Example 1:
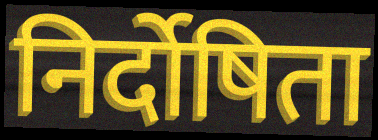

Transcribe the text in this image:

निर्दोषिता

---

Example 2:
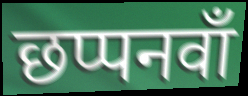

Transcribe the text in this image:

छप्पनवाँ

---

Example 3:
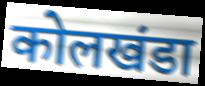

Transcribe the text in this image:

कोलखंडा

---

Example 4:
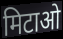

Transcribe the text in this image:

मिटाओ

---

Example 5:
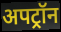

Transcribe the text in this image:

अपट्रॉन